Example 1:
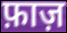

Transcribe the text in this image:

फ़ाज़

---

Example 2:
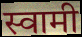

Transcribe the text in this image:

स्‍वामी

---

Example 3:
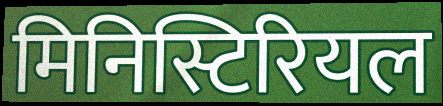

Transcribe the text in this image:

मिनिस्टिरियल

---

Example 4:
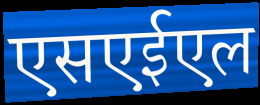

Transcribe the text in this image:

एसएईएल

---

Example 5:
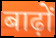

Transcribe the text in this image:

बाढ़ों